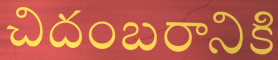
చిదంబరానికి